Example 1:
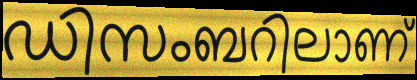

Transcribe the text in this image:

ഡിസംബറിലാണ്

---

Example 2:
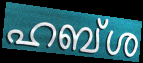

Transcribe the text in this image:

ഹബ്ശ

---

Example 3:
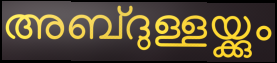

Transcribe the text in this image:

അബ്ദുള്ളയ്ക്കും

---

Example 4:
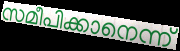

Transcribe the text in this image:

സമീപിക്കാനെന്ന്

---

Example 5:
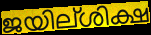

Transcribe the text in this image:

ജയില്ശിക്ഷ